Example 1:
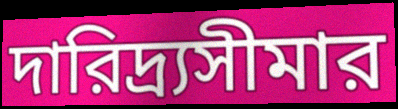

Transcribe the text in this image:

দারিদ্র্যসীমার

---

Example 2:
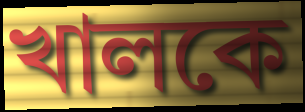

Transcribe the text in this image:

খালকে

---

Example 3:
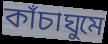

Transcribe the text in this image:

কাঁচাঘুমে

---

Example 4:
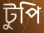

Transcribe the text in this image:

টুপি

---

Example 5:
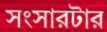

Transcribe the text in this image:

সংসারটার